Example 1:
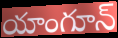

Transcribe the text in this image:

యాంగూన్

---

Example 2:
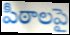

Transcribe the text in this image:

పీఠాలపై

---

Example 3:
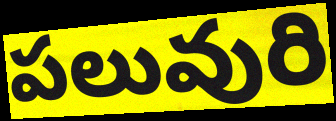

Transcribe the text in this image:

పలువురి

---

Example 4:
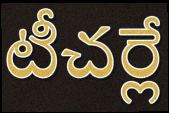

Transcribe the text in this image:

టీచర్లే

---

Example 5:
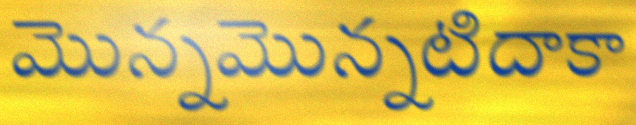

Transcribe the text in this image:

మొన్నమొన్నటిదాకా